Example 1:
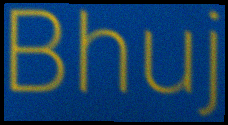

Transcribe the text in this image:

Bhuj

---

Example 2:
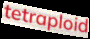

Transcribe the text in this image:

tetraploid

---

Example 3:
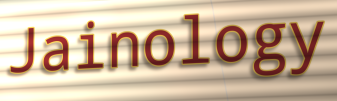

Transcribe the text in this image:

Jainology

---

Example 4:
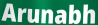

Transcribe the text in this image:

Arunabh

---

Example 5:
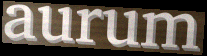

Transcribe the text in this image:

aurum